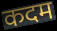
कदम